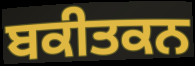
ਬਕੀਤਕਨ